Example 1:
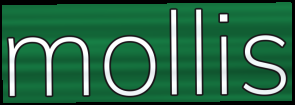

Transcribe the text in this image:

mollis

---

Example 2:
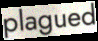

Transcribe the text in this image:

plagued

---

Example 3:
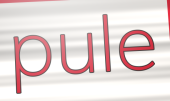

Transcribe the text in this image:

pule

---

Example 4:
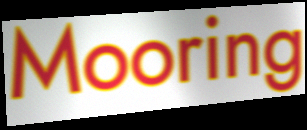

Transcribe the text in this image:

Mooring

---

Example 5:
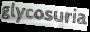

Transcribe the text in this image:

glycosuria